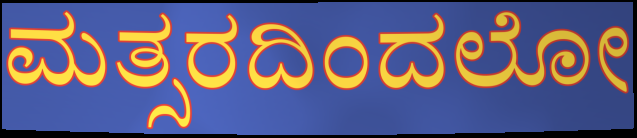
ಮತ್ಸರದಿಂದಲೋ